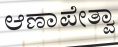
ಆಣಾಪೇತ್ವಾ